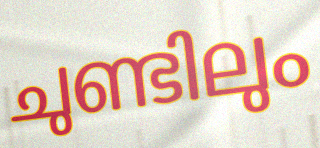
ചുണ്ടിലും